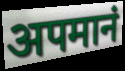
अपमानं